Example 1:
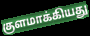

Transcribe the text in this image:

குளமாக்கியது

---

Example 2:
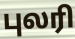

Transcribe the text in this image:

புலரி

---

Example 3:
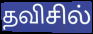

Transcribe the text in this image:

தவிசில்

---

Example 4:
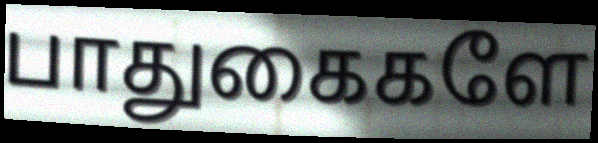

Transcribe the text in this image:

பாதுகைகளே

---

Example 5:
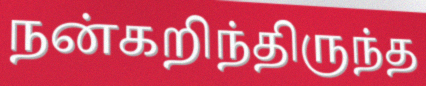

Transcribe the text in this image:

நன்கறிந்திருந்த